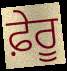
ਫ਼ੇਰੂ